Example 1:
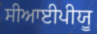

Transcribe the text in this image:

ਸੀਆਈਪੀਯੂ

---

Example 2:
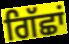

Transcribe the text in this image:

ਗਿੱਛਾਂ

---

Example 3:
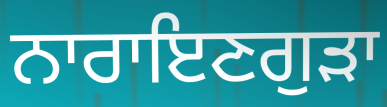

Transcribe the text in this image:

ਨਾਰਾਇਣਗੁੜਾ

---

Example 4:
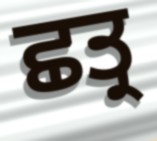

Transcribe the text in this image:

ਛਤ੍ਰ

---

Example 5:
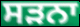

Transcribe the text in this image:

ਸੜਨਾ